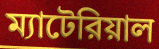
ম্যাটেরিয়াল